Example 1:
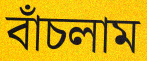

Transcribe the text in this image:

বাঁচলাম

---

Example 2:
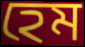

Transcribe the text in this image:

হেম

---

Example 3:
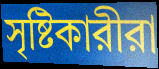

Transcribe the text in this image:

সৃষ্টিকারীরা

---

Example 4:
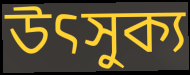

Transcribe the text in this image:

উৎসুক্য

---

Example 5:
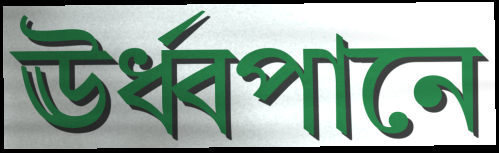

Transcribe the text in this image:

ঊর্ধ্বপানে